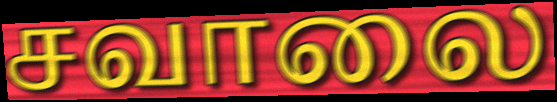
சவாலை